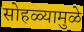
सोहळ्यामुळे